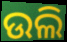
ଉଲି